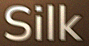
Silk